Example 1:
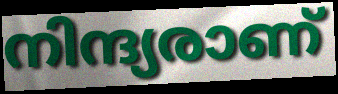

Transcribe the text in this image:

നിന്ദ്യരാണ്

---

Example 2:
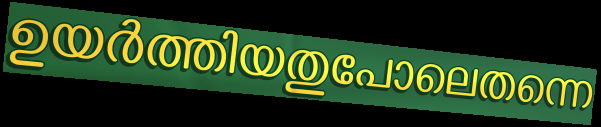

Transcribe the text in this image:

ഉയർത്തിയതുപോലെതന്നെ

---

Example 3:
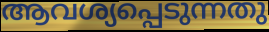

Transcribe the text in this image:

ആവശ്യപ്പെടുന്നതു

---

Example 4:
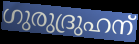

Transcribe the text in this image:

ഗുരുദ്രുഹന്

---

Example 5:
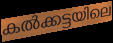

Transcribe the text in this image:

കൽക്കട്ടയിലെ